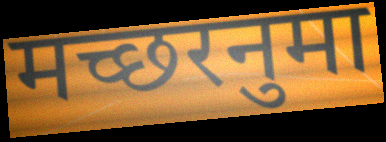
मच्छरनुमा